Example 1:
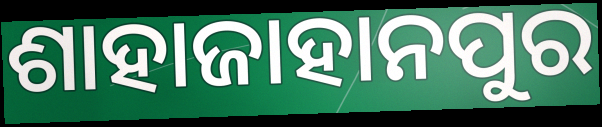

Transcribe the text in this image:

ଶାହାଜାହାନପୁର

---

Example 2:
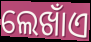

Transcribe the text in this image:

ଲେଖାଁଏ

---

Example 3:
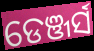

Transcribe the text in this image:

ଡେଞ୍ଜର୍ସ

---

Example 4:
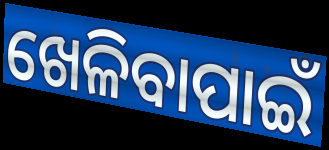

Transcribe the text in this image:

ଖେଳିବାପାଇଁ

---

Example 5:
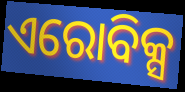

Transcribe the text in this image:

ଏରୋବିକ୍ସ